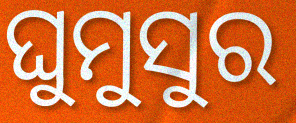
ଘୁମୁସୁର